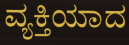
ವ್ಯಕ್ತಿಯಾದ